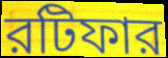
রটিফার